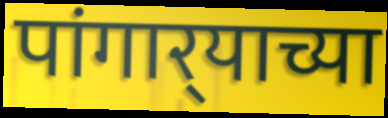
पांगार्‍याच्या